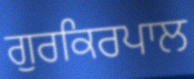
ਗੁਰਕਿਰਪਾਲ